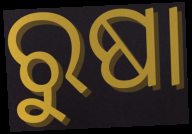
ରୁଷା